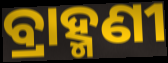
ବ୍ରାହ୍ମଣୀ